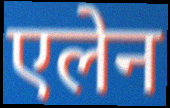
एलेन